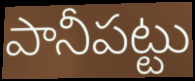
పానీపట్టు